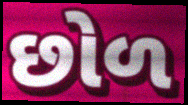
છોળ